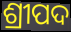
ଶ୍ରୀପଦ